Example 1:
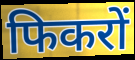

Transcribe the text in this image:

फिकरों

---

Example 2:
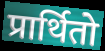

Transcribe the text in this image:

प्रार्थितो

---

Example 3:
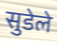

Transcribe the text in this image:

सुडेले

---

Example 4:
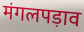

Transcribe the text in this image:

मंगलपड़ाव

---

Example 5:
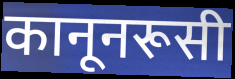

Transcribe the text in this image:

कानूनरूसी